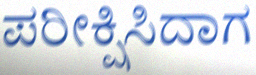
ಪರೀಕ್ಷಿಸಿದಾಗ